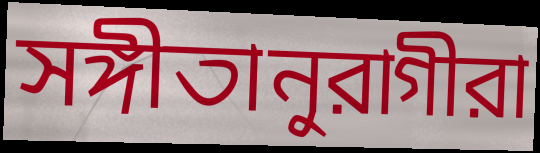
সঙ্গীতানুরাগীরা